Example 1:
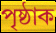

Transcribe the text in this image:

পৃষ্ঠাক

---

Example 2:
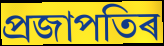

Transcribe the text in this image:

প্ৰজাপতিৰ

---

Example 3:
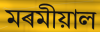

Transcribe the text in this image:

মৰমীয়াল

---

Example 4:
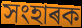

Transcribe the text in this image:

সংহাৰক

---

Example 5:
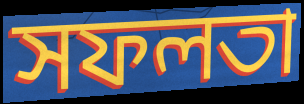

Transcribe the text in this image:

সফলতা